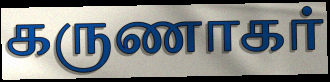
கருணாகர்